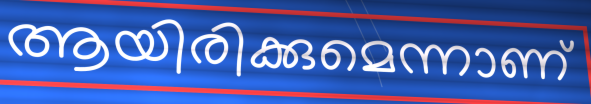
ആയിരിക്കുമെന്നാണ്